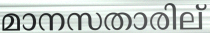
മാനസതാരില്